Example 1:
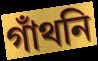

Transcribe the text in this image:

গাঁথনি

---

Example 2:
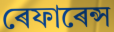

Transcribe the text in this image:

ৰেফাৰেন্স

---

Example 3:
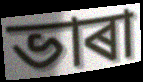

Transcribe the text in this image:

ভাৰা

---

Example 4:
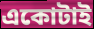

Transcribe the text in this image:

একোটাই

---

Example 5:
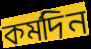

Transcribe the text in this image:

কৰ্মদিন